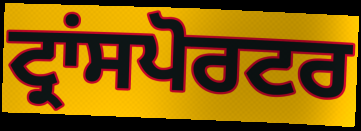
ਟ੍ਰਾਂਸਪੋਰਟਰ